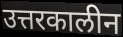
उत्तरकालीन